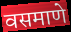
वसमाणे